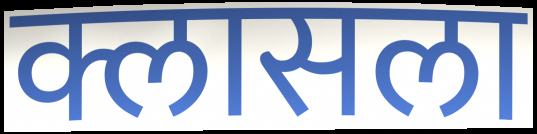
क्लासला